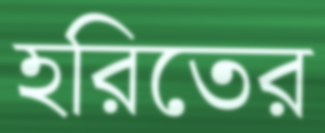
হরিতের